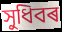
সুধিবৰ